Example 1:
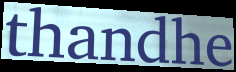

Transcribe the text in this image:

thandhe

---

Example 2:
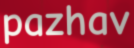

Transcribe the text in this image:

pazhav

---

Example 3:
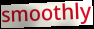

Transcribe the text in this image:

smoothly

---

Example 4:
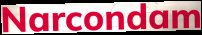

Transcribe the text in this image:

Narcondam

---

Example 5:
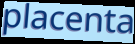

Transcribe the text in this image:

placenta